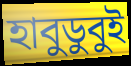
হাবুডুবুই